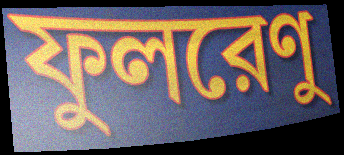
ফুলরেণু